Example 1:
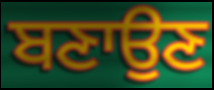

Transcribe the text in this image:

ਬਣਾਉਣ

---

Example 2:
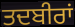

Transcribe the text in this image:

ਤਦਬੀਰਾਂ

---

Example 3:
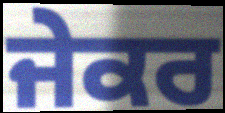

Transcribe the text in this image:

ਜੇਕਰ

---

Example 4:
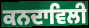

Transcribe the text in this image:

ਕਨਦਾਵਿਲੀ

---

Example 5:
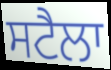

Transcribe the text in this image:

ਸਟੈਲਾ